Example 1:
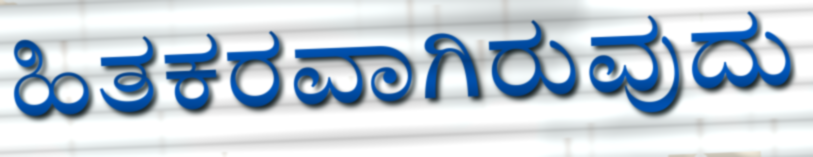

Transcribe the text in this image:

ಹಿತಕರವಾಗಿರುವುದು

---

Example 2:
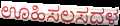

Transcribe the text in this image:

ಊಹಿಸಲಸದಳ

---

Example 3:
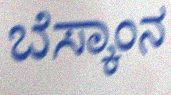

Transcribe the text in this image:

ಬೆಸ್ಕಾಂನ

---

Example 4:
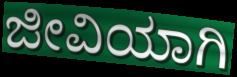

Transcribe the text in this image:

ಜೀವಿಯಾಗಿ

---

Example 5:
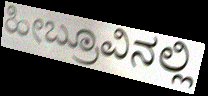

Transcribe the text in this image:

ಹೀಬ್ರೂವಿನಲ್ಲಿ